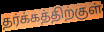
தர்க்கத்திற்குள்